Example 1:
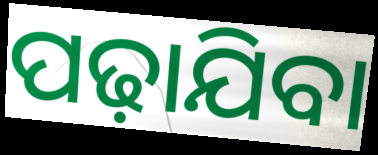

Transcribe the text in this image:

ପଢ଼ାଯିବା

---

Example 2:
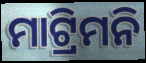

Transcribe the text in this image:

ମାଟ୍ରିମନି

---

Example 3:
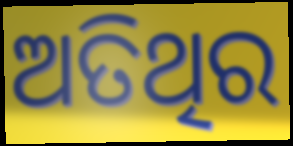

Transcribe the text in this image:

ଅତିଥିର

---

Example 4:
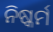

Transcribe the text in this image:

ନିଷ୍କର୍ମ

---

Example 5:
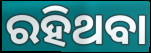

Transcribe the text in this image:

ରହିଥବା